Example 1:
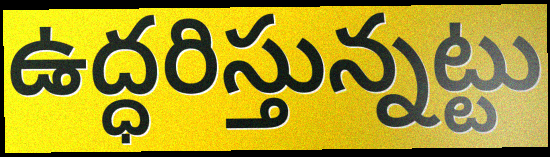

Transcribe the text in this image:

ఉద్ధరిస్తున్నట్టు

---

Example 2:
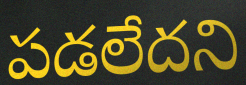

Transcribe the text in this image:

పడలేదని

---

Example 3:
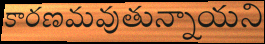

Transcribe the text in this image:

కారణమవుతున్నాయని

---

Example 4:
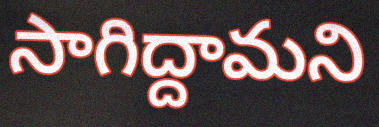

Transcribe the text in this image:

సాగిద్దామని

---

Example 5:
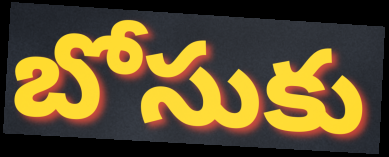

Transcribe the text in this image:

బోసుకు